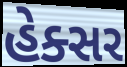
હેક્સર